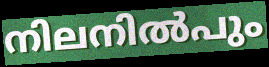
നിലനിൽപും